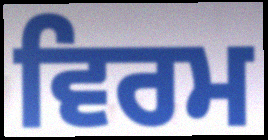
ਵਿਰਮ